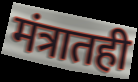
मंत्रातही